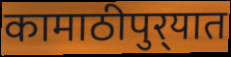
कामाठीपुर्‍यात